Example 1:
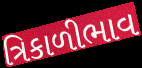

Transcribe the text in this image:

ત્રિકાળીભાવ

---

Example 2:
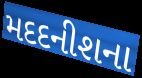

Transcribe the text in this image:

મદદનીશના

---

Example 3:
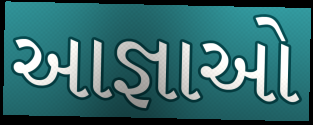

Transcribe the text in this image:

આજ્ઞાઓ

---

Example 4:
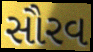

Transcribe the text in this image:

સૌરવ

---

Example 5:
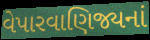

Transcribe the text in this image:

વેપારવાણિજ્યનાં